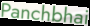
Panchbhai